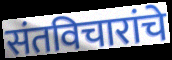
संतविचारांचे